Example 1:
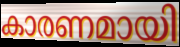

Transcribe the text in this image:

കാരണമായി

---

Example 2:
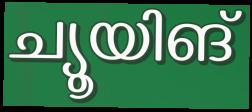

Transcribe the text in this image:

ച്യൂയിങ്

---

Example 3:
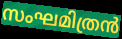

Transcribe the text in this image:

സംഘമിത്രൻ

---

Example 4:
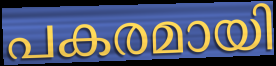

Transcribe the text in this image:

പകരമായി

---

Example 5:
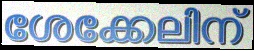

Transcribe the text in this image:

ശേക്കേലിന്